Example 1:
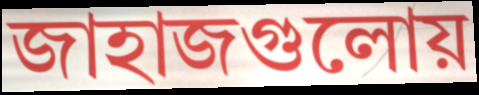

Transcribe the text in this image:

জাহাজগুলোয়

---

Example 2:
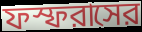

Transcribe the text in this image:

ফস্ফরাসের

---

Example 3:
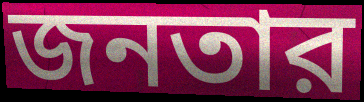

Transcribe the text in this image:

জনতার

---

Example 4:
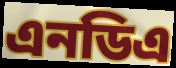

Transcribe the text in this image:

এনডিএ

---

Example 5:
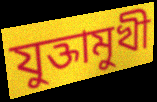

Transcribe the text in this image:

যুক্তামুখী